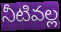
నీటివల్ల